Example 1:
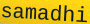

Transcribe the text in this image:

samadhi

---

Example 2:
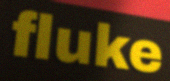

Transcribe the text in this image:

fluke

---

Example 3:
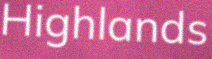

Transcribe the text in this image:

Highlands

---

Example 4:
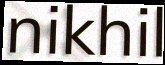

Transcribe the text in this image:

nikhil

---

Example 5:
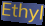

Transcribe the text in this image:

Ethyl